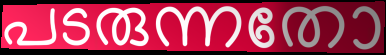
പടരുന്നതോ